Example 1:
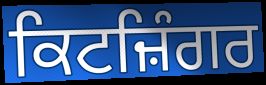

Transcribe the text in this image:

ਕਿਟਜ਼ਿੰਗਰ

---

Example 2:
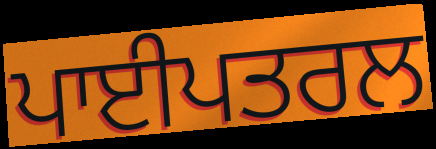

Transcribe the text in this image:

ਪਾਈਪਤਰਲ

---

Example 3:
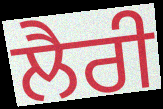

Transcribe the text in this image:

ਲੈਰੀ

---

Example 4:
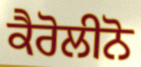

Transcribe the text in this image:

ਕੈਰੋਲੀਨੋ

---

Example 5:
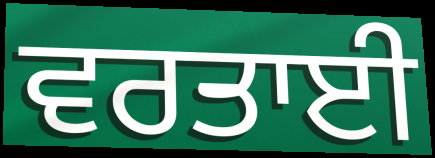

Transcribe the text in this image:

ਵਰਤਾਈ